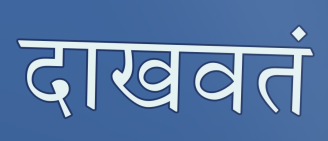
दाखवतं